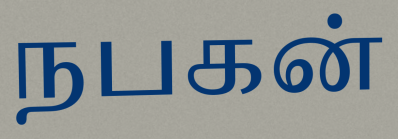
நபகன்